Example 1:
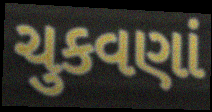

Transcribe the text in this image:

ચુકવણાં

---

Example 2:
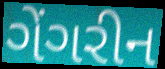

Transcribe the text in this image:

ગેંગરીન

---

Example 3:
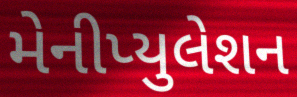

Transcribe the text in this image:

મેનીપ્યુલેશન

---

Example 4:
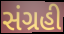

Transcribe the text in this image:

સંગ્રહી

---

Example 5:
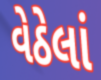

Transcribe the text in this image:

વેઠેલાં